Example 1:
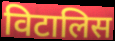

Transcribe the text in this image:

विटालिस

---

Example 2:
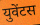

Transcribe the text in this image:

युवेंटस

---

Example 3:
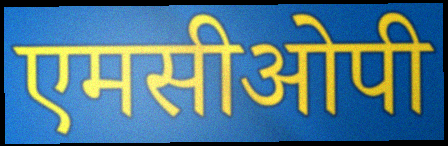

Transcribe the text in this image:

एमसीओपी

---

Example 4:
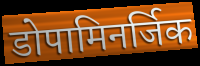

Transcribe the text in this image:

डोपामिनर्जिक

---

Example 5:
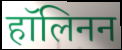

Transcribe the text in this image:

हॉलिनन